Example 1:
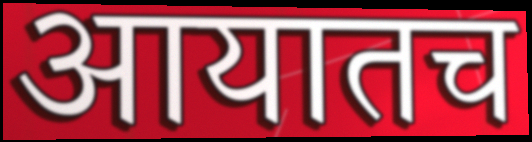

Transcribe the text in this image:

आयातच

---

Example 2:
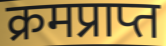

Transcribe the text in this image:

क्रमप्राप्‍त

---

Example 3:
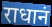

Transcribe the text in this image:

राधानं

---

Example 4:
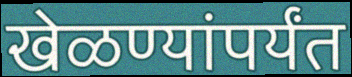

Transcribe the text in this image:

खेळण्यांपर्यंत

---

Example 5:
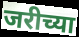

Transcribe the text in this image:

जरीच्या